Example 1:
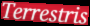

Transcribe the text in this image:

Terrestris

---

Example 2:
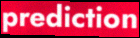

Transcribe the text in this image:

prediction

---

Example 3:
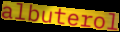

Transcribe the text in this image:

albuterol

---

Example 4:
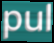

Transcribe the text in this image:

pul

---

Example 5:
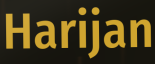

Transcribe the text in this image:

Harijan